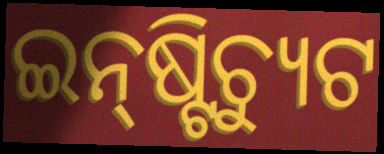
ଇନ୍‍ଷ୍ଟିଚ୍ୟୁଟ